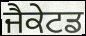
ਜੈਕੇਟਡ